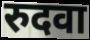
रुदवा